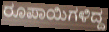
ರೂಪಾಯಿಗಳಿದ್ದ